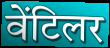
वेंटिलर